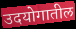
उदयोगातील